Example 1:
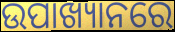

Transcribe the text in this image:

ଉପାଖ୍ୟାନରେ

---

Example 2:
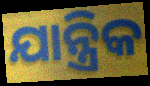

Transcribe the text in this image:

ଯାନ୍ତ୍ରିକ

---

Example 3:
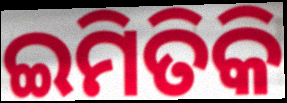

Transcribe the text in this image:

ଇମିତିକି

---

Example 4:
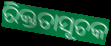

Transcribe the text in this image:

ରିକ୍ତତାସୂଚକ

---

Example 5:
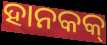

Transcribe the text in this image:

ହାନକକ୍